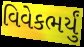
વિવેકભર્યું